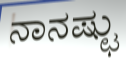
ನಾನಷ್ಟು